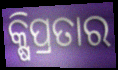
କ୍ଷିପ୍ରତାର